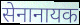
सेनानायक